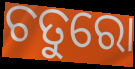
ଚତୁରୋ